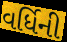
વર્ધિની